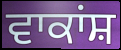
ਵਾਕਾਂਸ਼